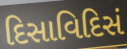
દિસાવિદિસં